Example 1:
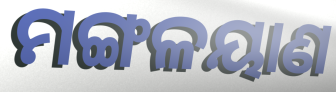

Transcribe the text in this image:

ମଙ୍ଗଳୟାଣ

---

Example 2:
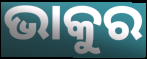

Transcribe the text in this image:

ଭାକୁର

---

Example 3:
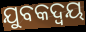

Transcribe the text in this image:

ଯୁବକଦ୍ୱୟ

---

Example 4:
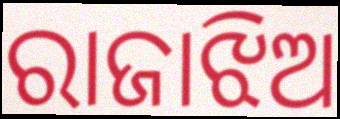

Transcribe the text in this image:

ରାଜାଝିଅ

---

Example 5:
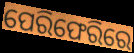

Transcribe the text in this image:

ପେରିଫେରିରେ